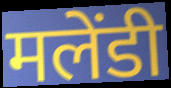
मलेंडी